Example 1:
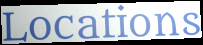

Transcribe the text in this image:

Locations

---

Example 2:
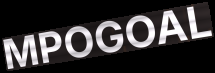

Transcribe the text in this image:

MPOGOAL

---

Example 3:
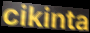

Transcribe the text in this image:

cikinta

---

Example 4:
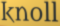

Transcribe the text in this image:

knoll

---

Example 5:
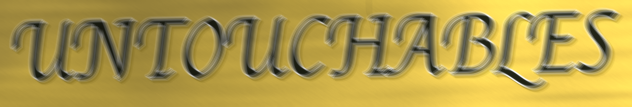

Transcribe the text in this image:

UNTOUCHABLES